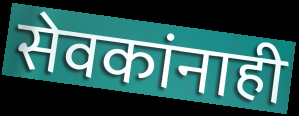
सेवकांनाही